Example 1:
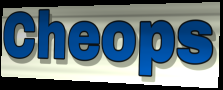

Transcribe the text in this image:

Cheops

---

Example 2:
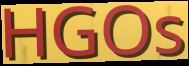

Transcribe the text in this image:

HGOs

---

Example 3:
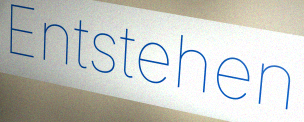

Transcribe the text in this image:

Entstehen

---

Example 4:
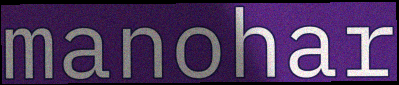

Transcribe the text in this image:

manohar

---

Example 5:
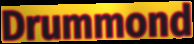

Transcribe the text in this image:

Drummond